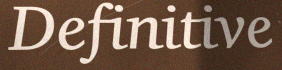
Definitive